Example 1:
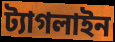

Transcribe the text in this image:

ট্যাগলাইন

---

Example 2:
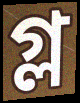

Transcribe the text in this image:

গ্ল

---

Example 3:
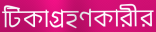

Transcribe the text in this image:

টিকাগ্রহণকারীর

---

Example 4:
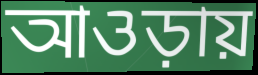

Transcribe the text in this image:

আওড়ায়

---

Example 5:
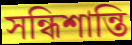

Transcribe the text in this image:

সন্ধিশান্তি